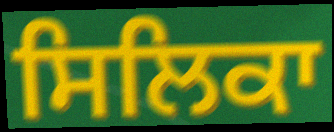
ਸਿਲਿਕਾ